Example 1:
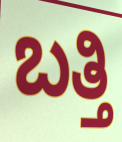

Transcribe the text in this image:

ಬತ್ತಿ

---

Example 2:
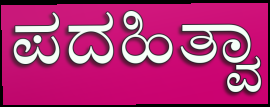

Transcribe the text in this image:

ಪದಹಿತ್ವಾ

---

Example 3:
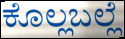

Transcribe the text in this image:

ಕೊಲ್ಲಬಲ್ಲೆ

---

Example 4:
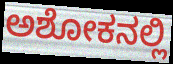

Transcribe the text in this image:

ಅಶೋಕನಲ್ಲಿ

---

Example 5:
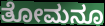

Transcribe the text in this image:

ತೋಮನೂ